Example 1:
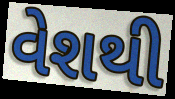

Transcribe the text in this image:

વેશથી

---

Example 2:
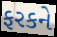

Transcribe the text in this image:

ફરકને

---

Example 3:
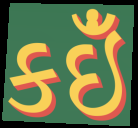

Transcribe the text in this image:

કઇઁં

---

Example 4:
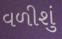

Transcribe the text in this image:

વળીશું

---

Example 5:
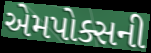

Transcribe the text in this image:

એમપોક્સની